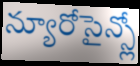
న్యూరోసైన్స్లో